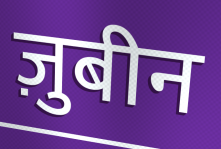
ज़ुबीन